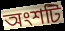
অংশটি